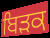
ਬਿੜਕ